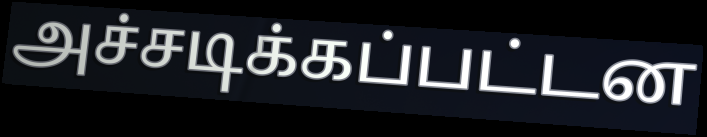
அச்சடிக்கப்பட்டன